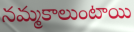
నమ్మకాలుంటాయి